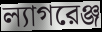
ল্যাগরেঞ্জ